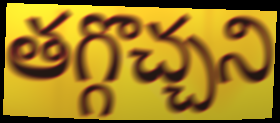
తగ్గొచ్చని